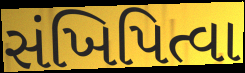
સંખિપિત્વા